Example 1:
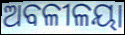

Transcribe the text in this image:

ଅବଳୀଳୟା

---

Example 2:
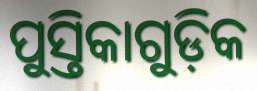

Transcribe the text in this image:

ପୁସ୍ତିକାଗୁଡ଼ିକ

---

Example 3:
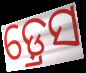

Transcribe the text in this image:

ଡ଼୍ରେସ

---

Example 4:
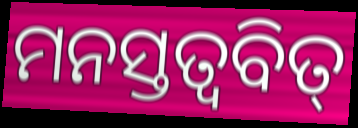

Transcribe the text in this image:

ମନସ୍ତତ୍ଵବିତ୍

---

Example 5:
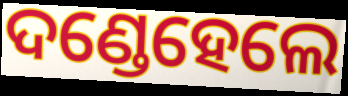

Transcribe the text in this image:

ଦଣ୍ଡେହେଲେ